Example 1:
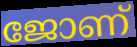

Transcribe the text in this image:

ജോണ്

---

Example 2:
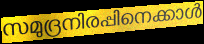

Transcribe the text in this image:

സമുദ്രനിരപ്പിനെക്കാൾ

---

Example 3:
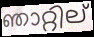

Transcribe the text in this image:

ഞാറ്റില്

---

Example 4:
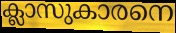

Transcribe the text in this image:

ക്ലാസുകാരനെ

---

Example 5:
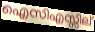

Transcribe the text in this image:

ഐസിഎസ്സില്